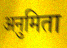
अनुमिता